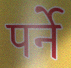
पर्ने